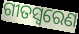
ଗୀତସ୍ବରେଣ